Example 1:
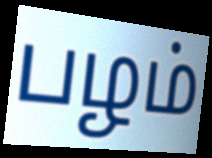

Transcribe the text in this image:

பழம்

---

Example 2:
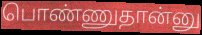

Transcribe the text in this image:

பொண்ணுதான்னு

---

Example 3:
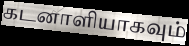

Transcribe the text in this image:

கடனாளியாகவும்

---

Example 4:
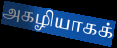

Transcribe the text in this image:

அகழியாகக்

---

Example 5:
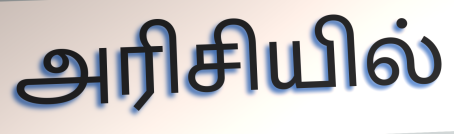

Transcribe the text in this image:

அரிசியில்